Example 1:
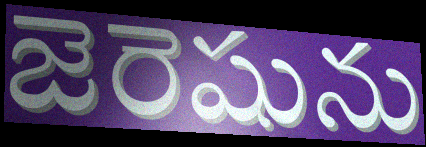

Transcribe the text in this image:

జెరెషును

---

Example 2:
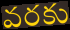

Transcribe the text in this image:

వరకు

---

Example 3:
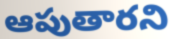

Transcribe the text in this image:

ఆపుతారని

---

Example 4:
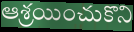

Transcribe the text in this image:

ఆశ్రయించుకొని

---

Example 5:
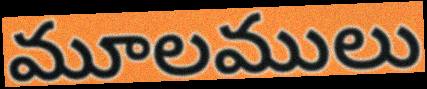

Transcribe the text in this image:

మూలములు